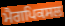
ਮੈਗਪਿਕਸਲ